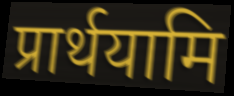
प्रार्थयामि